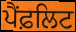
ਪੈਂਫ਼ਲਿਟ